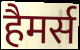
हैमर्स